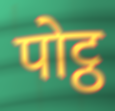
पोट्ठ